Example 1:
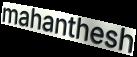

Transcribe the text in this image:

mahanthesh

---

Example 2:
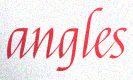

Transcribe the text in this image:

angles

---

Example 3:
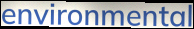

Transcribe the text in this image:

environmental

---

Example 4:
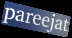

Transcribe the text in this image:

pareejat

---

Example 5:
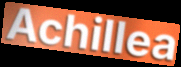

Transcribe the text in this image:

Achillea